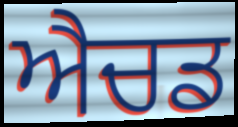
ਐਚਡ